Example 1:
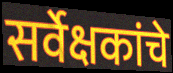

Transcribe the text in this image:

सर्वेक्षकांचे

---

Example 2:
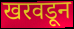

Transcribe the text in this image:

खरवडून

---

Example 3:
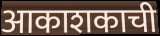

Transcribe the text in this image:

आकाशकाची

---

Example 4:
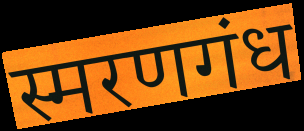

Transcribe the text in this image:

स्मरणगंध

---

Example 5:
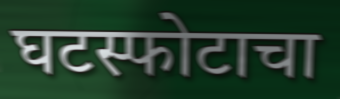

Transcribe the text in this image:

घटस्फोटाचा